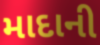
માદાની